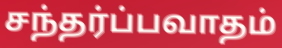
சந்தர்ப்பவாதம்